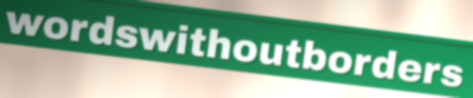
wordswithoutborders